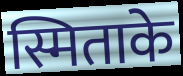
स्मिताके